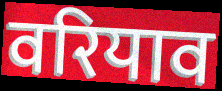
वरियाव